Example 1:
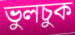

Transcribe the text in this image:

ভুলচুক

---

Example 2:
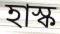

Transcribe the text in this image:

হাস্ক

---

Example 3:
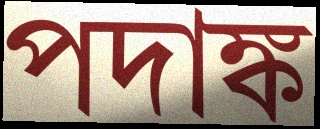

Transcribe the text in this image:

পদাঙ্ক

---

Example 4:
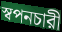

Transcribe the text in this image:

স্বপনচারী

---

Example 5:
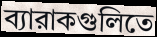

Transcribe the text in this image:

ব্যারাকগুলিতে